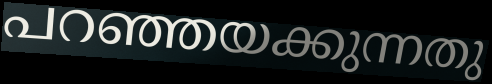
പറഞ്ഞയക്കുന്നതു